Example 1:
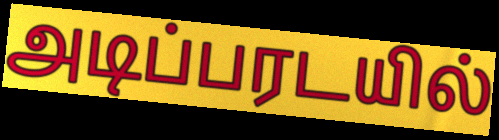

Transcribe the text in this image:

அடிப்பரடயில்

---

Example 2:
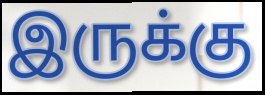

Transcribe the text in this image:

இருக்கு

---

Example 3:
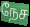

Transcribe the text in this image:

நேச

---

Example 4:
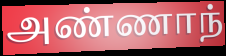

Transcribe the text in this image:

அண்ணாந்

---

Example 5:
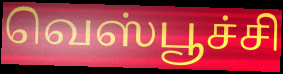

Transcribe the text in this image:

வெஸ்பூச்சி